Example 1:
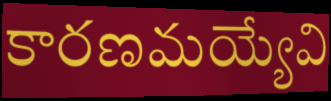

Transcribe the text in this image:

కారణమయ్యేవి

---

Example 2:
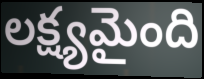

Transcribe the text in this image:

లక్ష్యమైంది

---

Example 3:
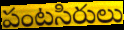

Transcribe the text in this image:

పంటసిరులు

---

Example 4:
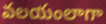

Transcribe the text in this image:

వలయంలాగా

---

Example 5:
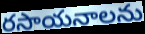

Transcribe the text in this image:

రసాయనాలను